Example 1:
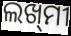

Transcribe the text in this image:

ଲଖ୍‌ମୀ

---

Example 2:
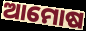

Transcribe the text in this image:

ଆମୋଷ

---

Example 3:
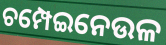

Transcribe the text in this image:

ଚମ୍ପେଇନେଉଳ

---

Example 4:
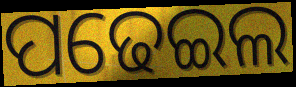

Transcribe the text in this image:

ପଢେଇଲ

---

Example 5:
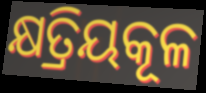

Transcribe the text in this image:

କ୍ଷତ୍ରିୟକୂଳ